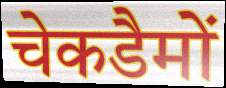
चेकडैमों